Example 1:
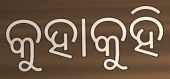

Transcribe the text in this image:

କୁହାକୁହି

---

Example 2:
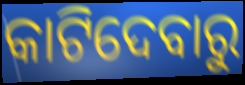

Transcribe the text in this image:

କାଟିଦେବାରୁ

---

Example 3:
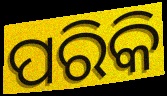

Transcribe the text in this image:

ପରିକି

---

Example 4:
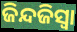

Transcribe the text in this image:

ଜିନ୍ଦଜିସ୍ୱା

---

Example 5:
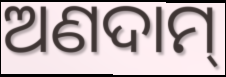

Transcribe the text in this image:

ଅଣଦାମ୍